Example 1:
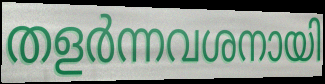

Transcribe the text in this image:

തളർന്നവശനായി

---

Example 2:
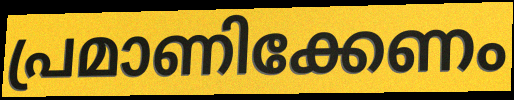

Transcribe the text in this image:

പ്രമാണിക്കേണം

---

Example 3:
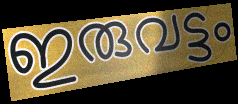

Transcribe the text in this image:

ഇരുവട്ടം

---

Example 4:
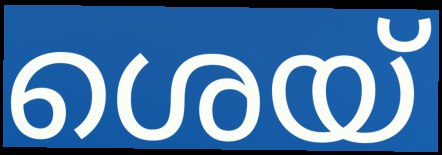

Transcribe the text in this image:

ശെയ്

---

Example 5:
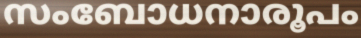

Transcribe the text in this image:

സംബോധനാരൂപം